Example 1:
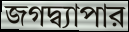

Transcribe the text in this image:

জগদ্ব্যাপার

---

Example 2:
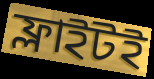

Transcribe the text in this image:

ফ্লাইটই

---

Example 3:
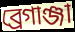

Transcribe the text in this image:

ব্রেগাঞ্জা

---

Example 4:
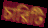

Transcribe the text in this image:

চারিটি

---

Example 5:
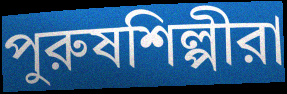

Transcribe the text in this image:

পুরুষশিল্পীরা